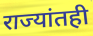
राज्यांतही